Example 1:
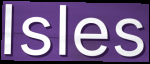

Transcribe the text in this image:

Isles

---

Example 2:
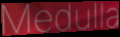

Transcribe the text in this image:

Medulla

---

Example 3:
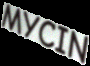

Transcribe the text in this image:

MYCIN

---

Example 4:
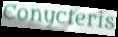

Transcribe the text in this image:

Eonycteris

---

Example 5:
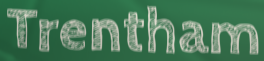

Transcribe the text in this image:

Trentham